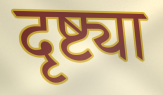
दृष्ट्या